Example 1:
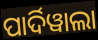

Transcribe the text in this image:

ପାର୍ଦିୱାଲା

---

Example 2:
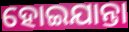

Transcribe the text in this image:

ହୋଇଯାନ୍ତା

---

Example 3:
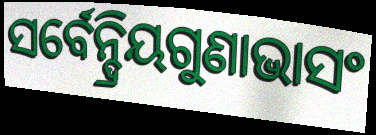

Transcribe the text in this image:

ସର୍ବେନ୍ଦ୍ରିୟଗୁଣାଭାସଂ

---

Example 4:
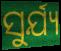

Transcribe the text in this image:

ସୁର୍ଯ୍ୟ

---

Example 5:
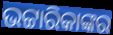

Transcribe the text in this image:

ଭଟ୍ଟାରିକାଙ୍କର